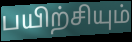
பயிற்சியும்